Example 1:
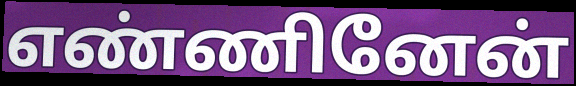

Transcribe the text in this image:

எண்ணினேன்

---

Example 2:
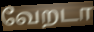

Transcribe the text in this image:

வேறடா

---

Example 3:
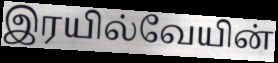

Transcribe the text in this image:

இரயில்வேயின்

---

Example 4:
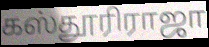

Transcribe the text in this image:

கஸ்தூரிராஜா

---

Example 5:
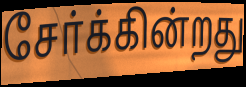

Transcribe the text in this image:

சேர்க்கின்றது